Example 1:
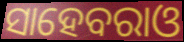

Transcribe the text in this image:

ସାହେବରାଓ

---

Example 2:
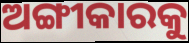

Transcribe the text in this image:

ଅଙ୍ଗୀକାରକୁ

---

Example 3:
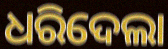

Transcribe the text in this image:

ଧରିଦେଲା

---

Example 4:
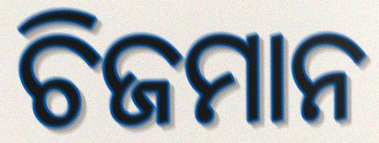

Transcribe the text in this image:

ଚିଜମାନ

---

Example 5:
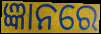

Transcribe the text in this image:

ଜ୍ଞାନରେ